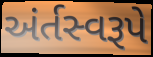
અંર્તસ્વરૂપે